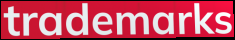
trademarks